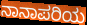
ನಾನಾಪರಿಯ